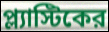
প্ল্যাস্টিকের